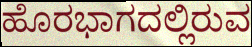
ಹೊರಭಾಗದಲ್ಲಿರುವ